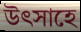
উত্‍সাহে